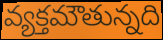
వ్యక్తమౌతున్నది